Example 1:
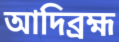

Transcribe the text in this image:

আদিব্রহ্ম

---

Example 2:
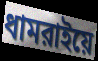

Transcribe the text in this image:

ধামরাইয়ে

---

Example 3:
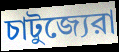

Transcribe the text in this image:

চাটুজ্যেরা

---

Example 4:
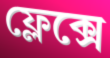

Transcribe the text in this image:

ফ্লেক্সে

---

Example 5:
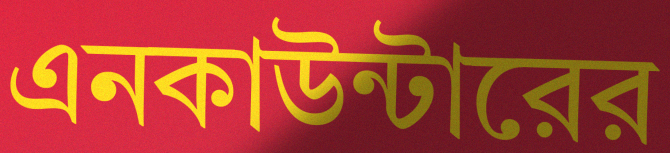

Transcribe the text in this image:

এনকাউন্টারের